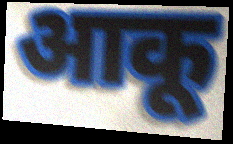
आकू